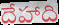
దేహాది